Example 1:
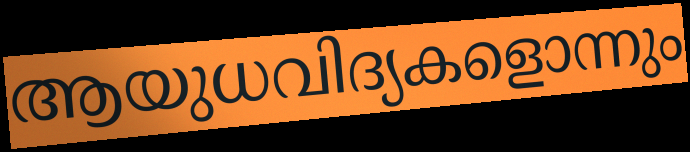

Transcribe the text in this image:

ആയുധവിദ്യകളൊന്നും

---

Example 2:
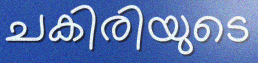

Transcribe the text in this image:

ചകിരിയുടെ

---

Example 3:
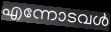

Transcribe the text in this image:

എന്നോടവൾ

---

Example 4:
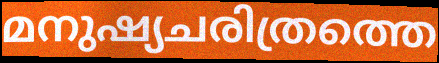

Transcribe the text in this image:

മനുഷ്യചരിത്രത്തെ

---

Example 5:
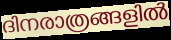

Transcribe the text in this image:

ദിനരാത്രങ്ങളിൽ